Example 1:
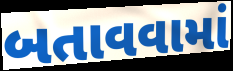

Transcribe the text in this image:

બતાવવામાં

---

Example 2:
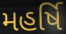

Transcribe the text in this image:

મહર્ષિ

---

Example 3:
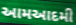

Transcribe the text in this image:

આમઆદમી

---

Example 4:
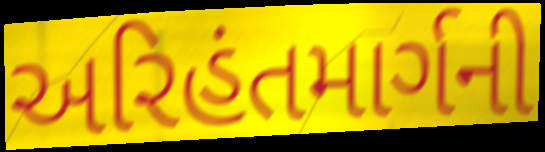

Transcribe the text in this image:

અરિહંતમાર્ગની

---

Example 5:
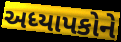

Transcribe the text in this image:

અધ્યાપકોને